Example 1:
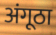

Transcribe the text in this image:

अंगूठा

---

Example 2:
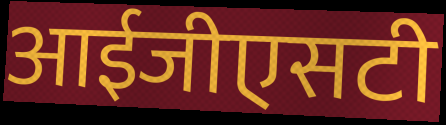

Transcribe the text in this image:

आईजीएसटी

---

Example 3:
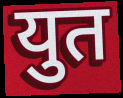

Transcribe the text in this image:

युत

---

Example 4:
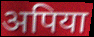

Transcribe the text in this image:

अपिया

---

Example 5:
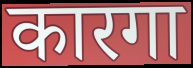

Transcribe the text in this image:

कारगा